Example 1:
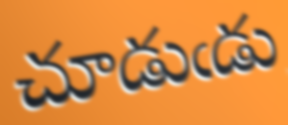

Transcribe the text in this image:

చూడుఁడు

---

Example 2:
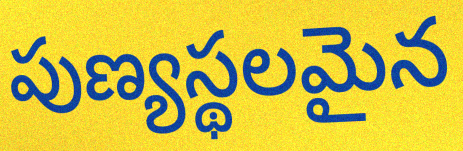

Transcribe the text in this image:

పుణ్యస్థలమైన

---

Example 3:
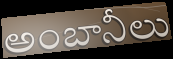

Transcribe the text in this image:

అంబానీలు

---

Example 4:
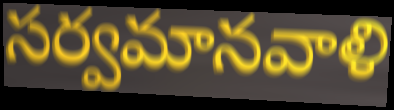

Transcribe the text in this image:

సర్వమానవాళి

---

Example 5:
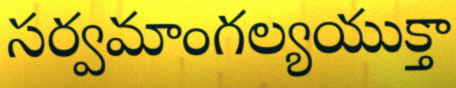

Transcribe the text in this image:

సర్వమాంగల్యయుక్తా